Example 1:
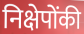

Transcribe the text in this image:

निक्षेपोंकी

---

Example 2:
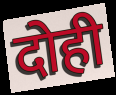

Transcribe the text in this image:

दोही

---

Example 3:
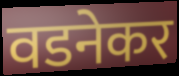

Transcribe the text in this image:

वडनेकर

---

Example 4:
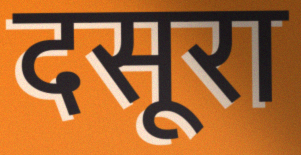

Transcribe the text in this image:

दसूरा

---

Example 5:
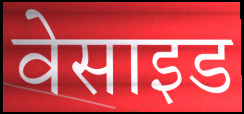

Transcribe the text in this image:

वेसाइड